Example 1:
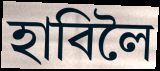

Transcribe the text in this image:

হাবিলৈ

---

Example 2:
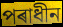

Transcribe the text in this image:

পৰাধীন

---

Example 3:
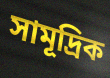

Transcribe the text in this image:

সামূদ্ৰিক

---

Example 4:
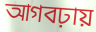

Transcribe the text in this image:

আগবঢ়ায়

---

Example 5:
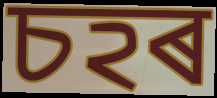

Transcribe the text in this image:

চহৰ